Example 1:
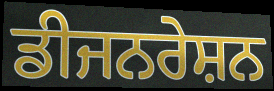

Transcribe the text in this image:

ਡੀਜਨਰੇਸ਼ਨ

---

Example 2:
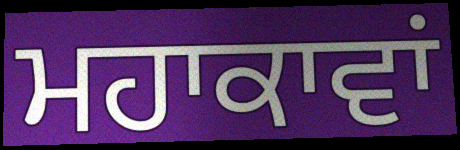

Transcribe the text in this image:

ਮਹਾਕਾਵਾਂ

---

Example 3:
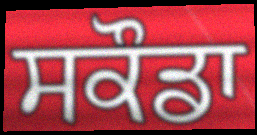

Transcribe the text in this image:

ਸਕੌਡਾ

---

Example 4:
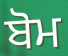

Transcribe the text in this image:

ਬੋਮ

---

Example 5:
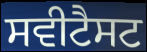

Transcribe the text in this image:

ਸਵੀਟੈਸਟ